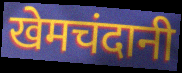
खेमचंदानी